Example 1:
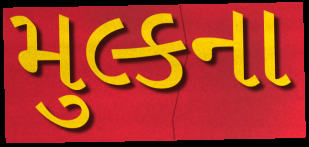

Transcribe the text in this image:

મુલ્કના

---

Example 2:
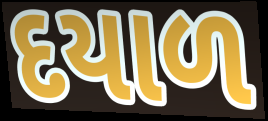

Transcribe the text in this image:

દયાળ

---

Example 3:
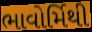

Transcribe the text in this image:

ભાવોર્મિથી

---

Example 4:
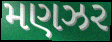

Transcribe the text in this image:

મણઝર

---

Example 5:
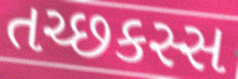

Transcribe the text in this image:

તચ્છકસ્સ